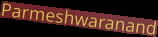
Parmeshwaranand